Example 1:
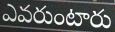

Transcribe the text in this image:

ఎవరుంటారు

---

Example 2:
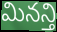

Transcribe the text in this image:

మినన్తి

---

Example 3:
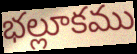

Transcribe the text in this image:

భల్లూకము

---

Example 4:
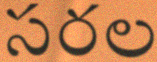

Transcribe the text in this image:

సరల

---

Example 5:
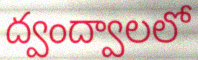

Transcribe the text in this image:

ద్వంద్వాలలో